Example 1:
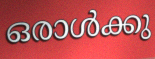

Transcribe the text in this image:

ഒരാൾക്കു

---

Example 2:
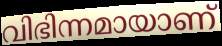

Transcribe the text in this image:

വിഭിന്നമായാണ്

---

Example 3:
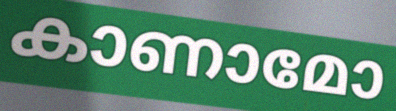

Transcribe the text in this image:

കാണാമോ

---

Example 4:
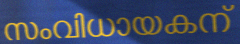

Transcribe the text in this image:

സംവിധായകന്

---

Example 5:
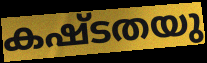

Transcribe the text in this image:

കഷ്ടതയു